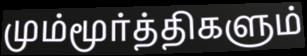
மும்மூர்த்திகளும்